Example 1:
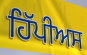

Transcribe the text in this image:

ਹਿੱਪੀਅਸ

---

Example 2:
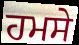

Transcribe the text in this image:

ਹਮਸੇ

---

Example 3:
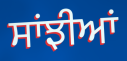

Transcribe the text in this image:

ਸਾਂਝੀਆਂ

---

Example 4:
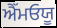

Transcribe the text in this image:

ਐੱਮਓਯੂ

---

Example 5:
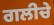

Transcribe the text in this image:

ਗਲੀਚੇ